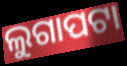
ଲୁଗାପଟା